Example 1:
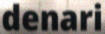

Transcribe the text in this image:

denari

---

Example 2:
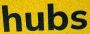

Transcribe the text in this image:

hubs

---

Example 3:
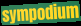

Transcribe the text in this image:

sympodium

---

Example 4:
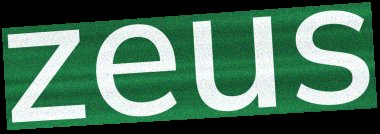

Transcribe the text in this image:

zeus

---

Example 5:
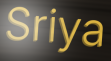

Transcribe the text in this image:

Sriya